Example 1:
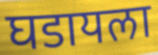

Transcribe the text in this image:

घडायला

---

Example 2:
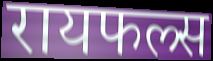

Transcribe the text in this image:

रायफल्स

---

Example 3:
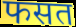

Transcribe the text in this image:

फसत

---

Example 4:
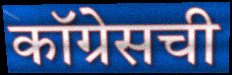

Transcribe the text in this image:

कॉग्रेसची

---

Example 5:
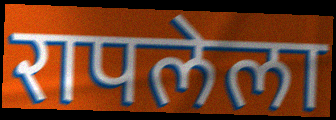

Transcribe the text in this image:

रापलेला